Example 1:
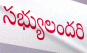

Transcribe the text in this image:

సభ్యులందరి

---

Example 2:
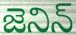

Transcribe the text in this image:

జెనిన్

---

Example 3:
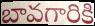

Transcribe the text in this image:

బావగారికి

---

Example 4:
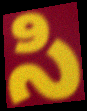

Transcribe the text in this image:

సి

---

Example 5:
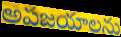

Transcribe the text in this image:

అపజయాలను